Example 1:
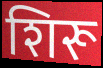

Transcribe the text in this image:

शिरू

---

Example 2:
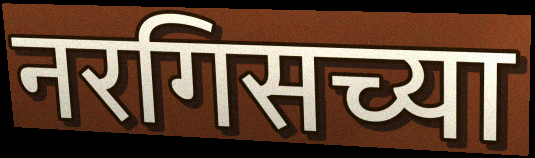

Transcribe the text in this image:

नरगिसच्या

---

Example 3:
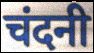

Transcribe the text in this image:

चंदनी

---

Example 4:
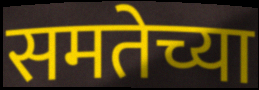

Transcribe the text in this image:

समतेच्या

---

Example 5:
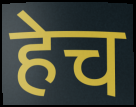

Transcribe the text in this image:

हेच